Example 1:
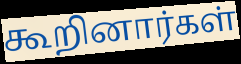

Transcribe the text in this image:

கூறினார்கள்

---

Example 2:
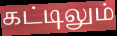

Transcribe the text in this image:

கட்டிலும்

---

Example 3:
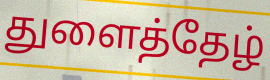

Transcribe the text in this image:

துளைத்தேழ்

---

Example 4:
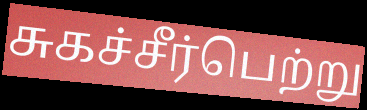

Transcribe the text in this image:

சுகச்சீர்பெற்று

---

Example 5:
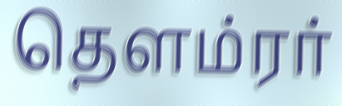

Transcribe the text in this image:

தௌம்ரர்